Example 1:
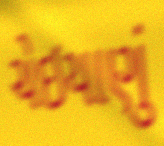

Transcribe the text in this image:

ચેઇયાણું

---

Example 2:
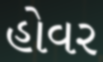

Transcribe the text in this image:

હોવર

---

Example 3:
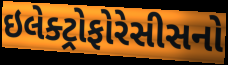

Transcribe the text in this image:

ઇલેક્ટ્રોફોરેસીસનો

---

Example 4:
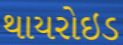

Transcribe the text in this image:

થાયરોઇડ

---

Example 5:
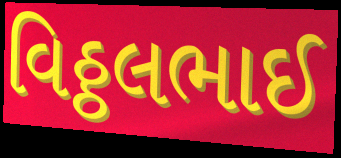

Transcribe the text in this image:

વિઠ્ઠલભાઈ